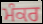
ਮੰਕਰ